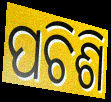
ପଚିଶି